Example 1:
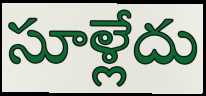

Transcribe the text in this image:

సూళ్లేదు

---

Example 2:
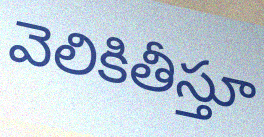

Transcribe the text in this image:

వెలికితీస్తూ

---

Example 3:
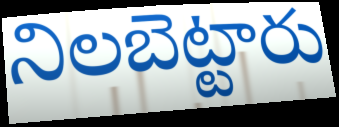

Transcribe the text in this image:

నిలబెట్టారు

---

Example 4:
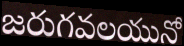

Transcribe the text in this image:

జరుగవలయునో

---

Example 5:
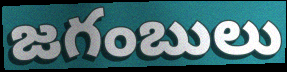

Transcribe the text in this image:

జగంబులు